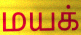
மயக்